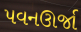
પવનઊર્જા